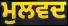
ਮੁਲਵਦ